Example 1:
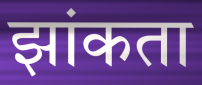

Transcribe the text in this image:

झांकता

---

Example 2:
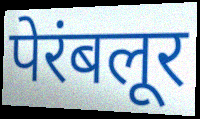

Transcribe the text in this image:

पेरंबलूर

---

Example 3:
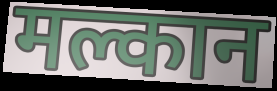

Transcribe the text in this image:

मल्कान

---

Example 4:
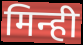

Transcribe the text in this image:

मिन्ही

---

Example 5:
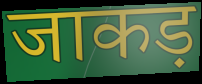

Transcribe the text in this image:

जाकड़